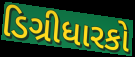
ડિગ્રીધારકો